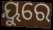
ୟୁରେ